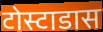
टोस्टाडास